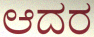
ಆದರ